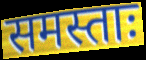
समस्ताः